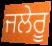
ਜਲੇਰੂ